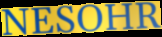
NESOHR